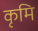
कृमि